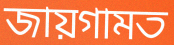
জায়গামত